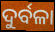
ଦୁର୍ବଳା